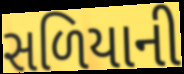
સળિયાની